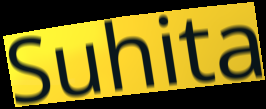
Suhita